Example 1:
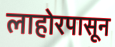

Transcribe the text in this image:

लाहोरपासून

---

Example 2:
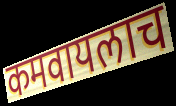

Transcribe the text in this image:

कमवायलाच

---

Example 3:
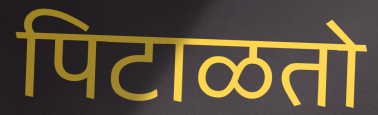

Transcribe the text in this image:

पिटाळतो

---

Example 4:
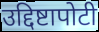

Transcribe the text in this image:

उद्दिष्टापोटी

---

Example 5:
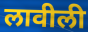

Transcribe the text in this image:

लावीली